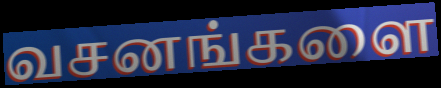
வசனங்களை